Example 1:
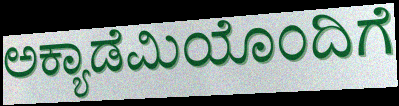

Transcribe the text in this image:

ಅಕ್ಯಾಡೆಮಿಯೊಂದಿಗೆ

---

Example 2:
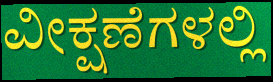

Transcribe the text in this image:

ವೀಕ್ಷಣೆಗಳಲ್ಲಿ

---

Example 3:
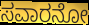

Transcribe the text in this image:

ಸವಾರನೋ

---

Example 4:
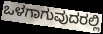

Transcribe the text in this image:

ಒಳಗಾಗುವುದರಲ್ಲಿ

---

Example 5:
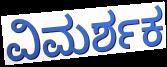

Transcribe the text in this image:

ವಿಮರ್ಶಕ